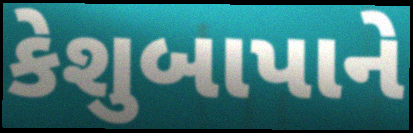
કેશુબાપાને